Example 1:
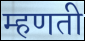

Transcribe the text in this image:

म्हणती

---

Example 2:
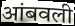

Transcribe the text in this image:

आंबवली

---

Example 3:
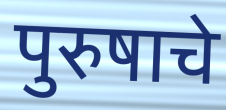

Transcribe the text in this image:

पुरुषाचे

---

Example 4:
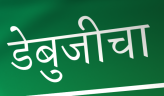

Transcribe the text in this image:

डेबुजीचा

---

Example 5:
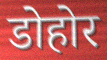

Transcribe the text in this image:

डोहोर